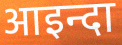
आइन्दा